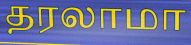
தரலாமா